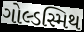
ગોલ્ડસ્મિથ